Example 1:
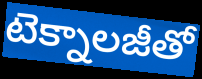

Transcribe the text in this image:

టెక్నాలజీతో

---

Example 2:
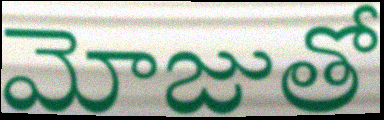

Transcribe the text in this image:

మోజుతో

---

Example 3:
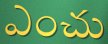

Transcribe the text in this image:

ఎంచు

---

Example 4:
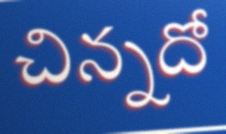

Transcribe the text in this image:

చిన్నదో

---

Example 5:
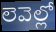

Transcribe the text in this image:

లెవెల్లో